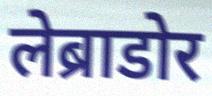
लेब्राडोर